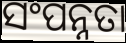
ସଂପନ୍ନତା